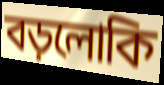
বড়লোকি